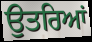
ਉਤਰਿਆਂ